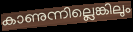
കാണുന്നില്ലെങ്കിലും